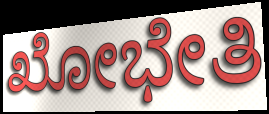
ಖೋಭೇತಿ